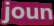
joun